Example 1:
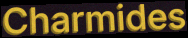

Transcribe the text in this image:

Charmides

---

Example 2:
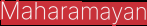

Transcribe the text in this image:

Maharamayan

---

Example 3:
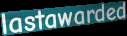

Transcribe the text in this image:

lastawarded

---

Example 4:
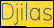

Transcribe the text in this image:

Djilas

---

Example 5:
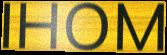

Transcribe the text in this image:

IHOM